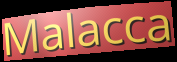
Malacca